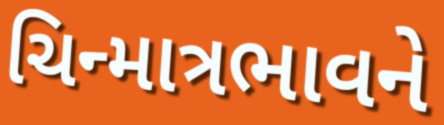
ચિન્માત્રભાવને